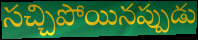
సచ్చిపోయినప్పుడు